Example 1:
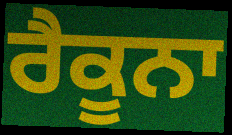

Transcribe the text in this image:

ਰੈਕੂਨਾ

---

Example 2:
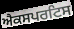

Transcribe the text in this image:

ਐਕਸਪਰਟਿਸ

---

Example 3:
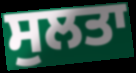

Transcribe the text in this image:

ਸੁਲਤਾ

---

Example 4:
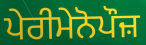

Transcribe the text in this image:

ਪੇਰੀਮੇਨੋਪੌਜ਼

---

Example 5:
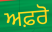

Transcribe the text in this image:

ਅਫ਼ਰੋ